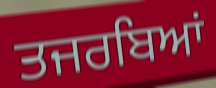
ਤਜਰਬਿਆਂ